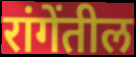
रांगेंतील